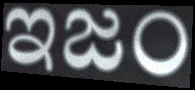
ఇజం